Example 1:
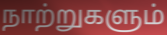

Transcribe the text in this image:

நாற்றுகளும்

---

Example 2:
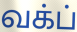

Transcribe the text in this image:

வக்ப்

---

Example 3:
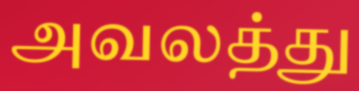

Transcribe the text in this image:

அவலத்து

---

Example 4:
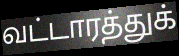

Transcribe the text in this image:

வட்டாரத்துக்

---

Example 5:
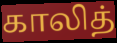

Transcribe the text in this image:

காலித்